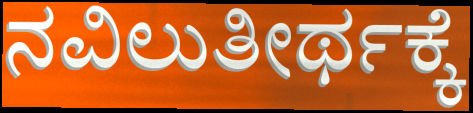
ನವಿಲುತೀರ್ಥಕ್ಕೆ